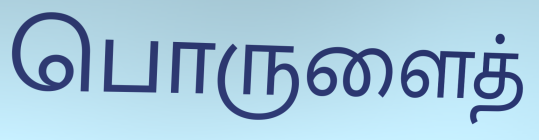
பொருளைத்